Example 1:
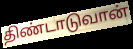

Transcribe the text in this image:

திண்டாடுவான்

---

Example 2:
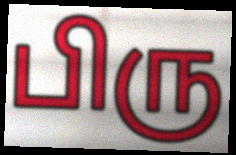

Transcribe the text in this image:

பிரு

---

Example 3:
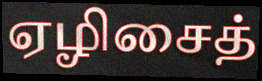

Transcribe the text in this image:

ஏழிசைத்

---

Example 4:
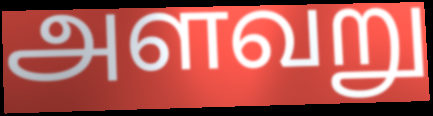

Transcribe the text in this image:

அளவறு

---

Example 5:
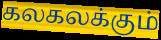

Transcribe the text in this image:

கலகலக்கும்